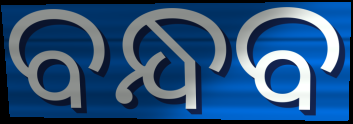
ବନ୍ଧବ